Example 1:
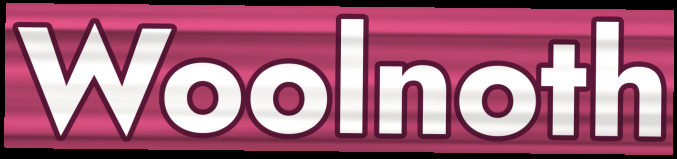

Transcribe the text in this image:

Woolnoth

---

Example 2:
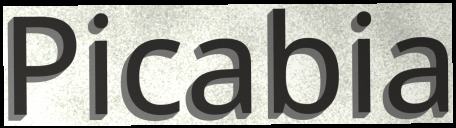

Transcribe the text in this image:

Picabia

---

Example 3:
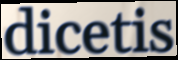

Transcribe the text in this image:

dicetis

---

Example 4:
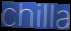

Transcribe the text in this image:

chilla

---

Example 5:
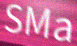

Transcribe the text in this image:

SMa